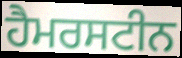
ਹੈਮਰਸਟੀਨ